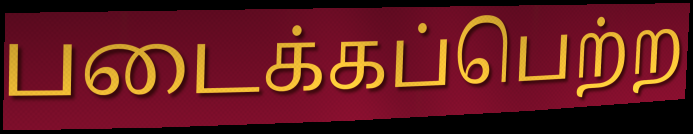
படைக்கப்பெற்ற